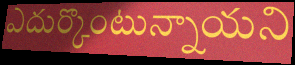
ఎదుర్కొంటున్నాయని